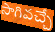
సాగివచ్చే